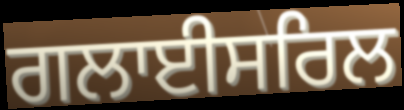
ਗਲਾਈਸਰਿਲ